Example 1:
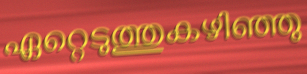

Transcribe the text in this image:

ഏറ്റെടുത്തുകഴിഞ്ഞു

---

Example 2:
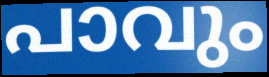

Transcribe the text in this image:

പാവും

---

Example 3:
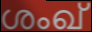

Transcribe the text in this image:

ശംഖ്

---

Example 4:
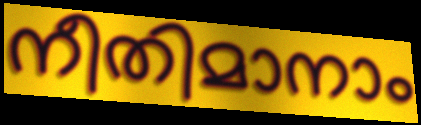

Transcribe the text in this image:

നീതിമാനാം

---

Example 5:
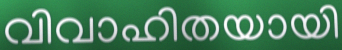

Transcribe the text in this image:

വിവാഹിതയായി